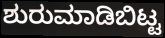
ಶುರುಮಾಡಿಬಿಟ್ಟ